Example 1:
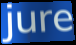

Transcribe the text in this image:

jure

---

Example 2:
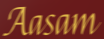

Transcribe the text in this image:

Aasam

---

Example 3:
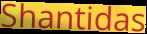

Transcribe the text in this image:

Shantidas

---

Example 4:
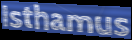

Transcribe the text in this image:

Isthamus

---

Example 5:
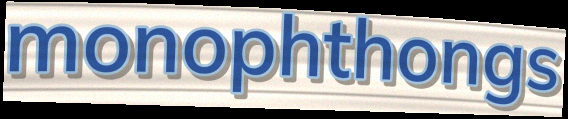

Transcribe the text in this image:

monophthongs